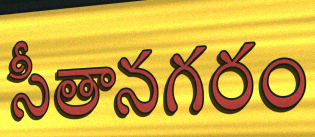
సీతానగరం